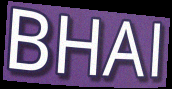
BHAI